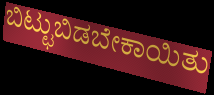
ಬಿಟ್ಟುಬಿಡಬೇಕಾಯಿತು